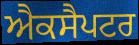
ਐਕਸੈਪਟਰ